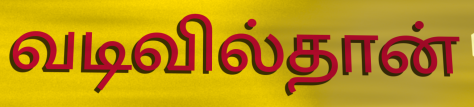
வடிவில்தான்